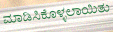
ಮಾಡಿಸಿಕೊಳ್ಳಲಾಯಿತು